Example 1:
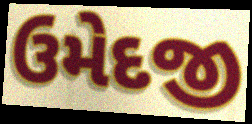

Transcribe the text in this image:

ઉમેદજી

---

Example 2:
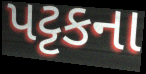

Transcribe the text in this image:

પટ્ટકના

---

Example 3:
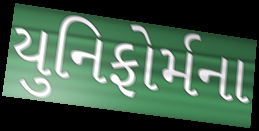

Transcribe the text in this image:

યુનિફોર્મના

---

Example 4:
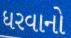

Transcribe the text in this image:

ધરવાનો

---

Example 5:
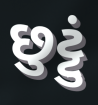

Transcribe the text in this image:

છુટ્ટું